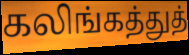
கலிங்கத்துத்